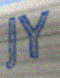
JY